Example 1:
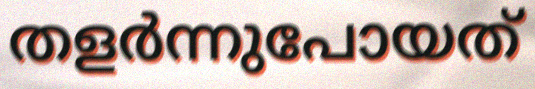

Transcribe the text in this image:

തളർന്നുപോയത്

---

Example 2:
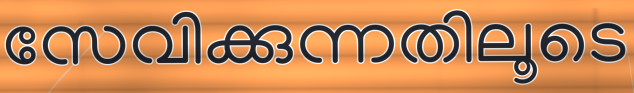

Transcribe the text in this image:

സേവിക്കുന്നതിലൂടെ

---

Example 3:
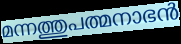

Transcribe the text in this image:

മന്നത്തുപത്മനാഭൻ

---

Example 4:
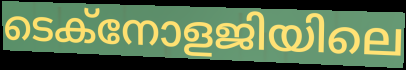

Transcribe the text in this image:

ടെക്നോളജിയിലെ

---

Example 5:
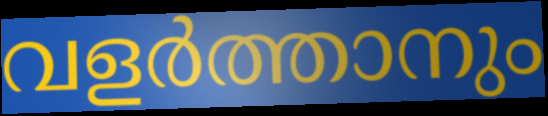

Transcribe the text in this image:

വളർത്താനും